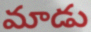
మాడు